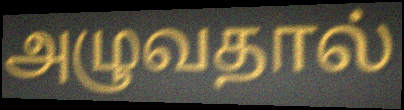
அழுவதால்